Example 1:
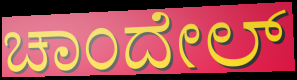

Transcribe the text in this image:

ಚಾಂದೇಲ್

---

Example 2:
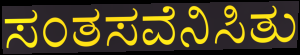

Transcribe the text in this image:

ಸಂತಸವೆನಿಸಿತು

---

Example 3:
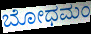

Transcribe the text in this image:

ಬೋಧಮಂ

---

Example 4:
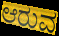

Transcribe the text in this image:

ಆರುವ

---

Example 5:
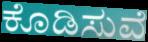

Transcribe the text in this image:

ಕೊಡಿಸುವೆ